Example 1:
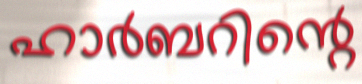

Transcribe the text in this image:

ഹാർബറിന്റെ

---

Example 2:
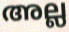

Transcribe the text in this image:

അല്ല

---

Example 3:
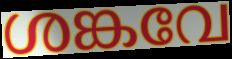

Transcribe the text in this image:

ശങ്കവേ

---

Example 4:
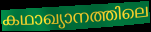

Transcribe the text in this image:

കഥാഖ്യാനത്തിലെ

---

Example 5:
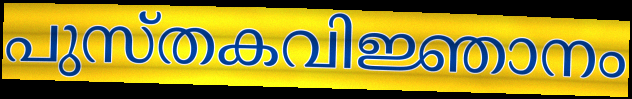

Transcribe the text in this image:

പുസ്തകവിജ്ഞാനം